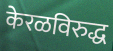
केरळविरुद्ध